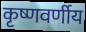
कृष्णवर्णीय